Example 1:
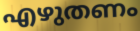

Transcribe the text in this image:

എഴുതണം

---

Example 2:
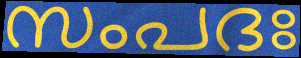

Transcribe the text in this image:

സംപദഃ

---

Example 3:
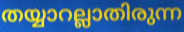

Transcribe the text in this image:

തയ്യാറല്ലാതിരുന്ന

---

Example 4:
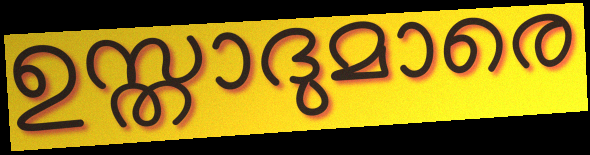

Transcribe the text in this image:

ഉസ്താദുമാരെ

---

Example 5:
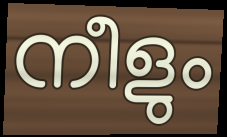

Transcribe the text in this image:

നീളും